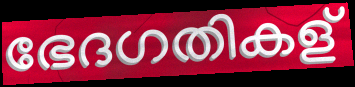
ഭേദഗതികള്